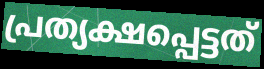
പ്രത്യക്ഷപ്പെട്ടത്